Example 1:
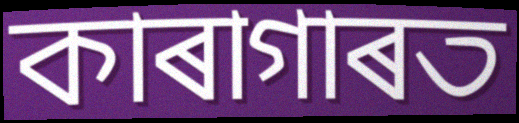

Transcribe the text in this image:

কাৰাগাৰত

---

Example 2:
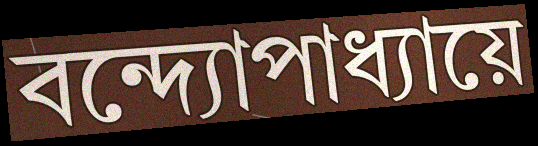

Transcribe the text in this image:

বন্দ্যোপাধ্যায়ে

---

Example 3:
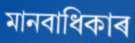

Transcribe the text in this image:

মানবাধিকাৰ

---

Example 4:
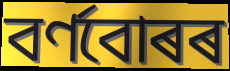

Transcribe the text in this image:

বৰ্ণবোৰৰ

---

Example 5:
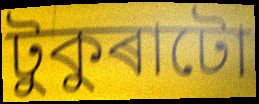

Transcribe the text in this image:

টুকুৰাটো